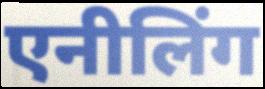
एनीलिंग